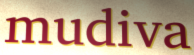
mudiva